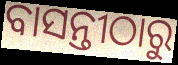
ବାସନ୍ତୀଠାରୁ